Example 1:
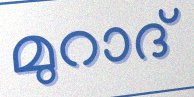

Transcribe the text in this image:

മുറാദ്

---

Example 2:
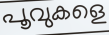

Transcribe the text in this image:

പൂവുകളെ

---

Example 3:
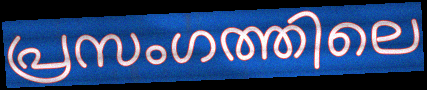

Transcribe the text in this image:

പ്രസംഗത്തിലെ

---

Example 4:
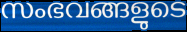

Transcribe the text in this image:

സംഭവങ്ങളുടെ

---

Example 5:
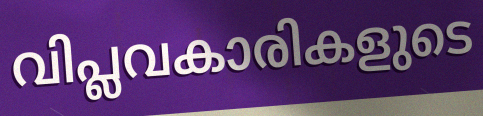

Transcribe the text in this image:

വിപ്ലവകാരികളുടെ